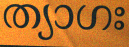
ത്യാഗഃ